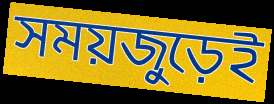
সময়জুড়েই